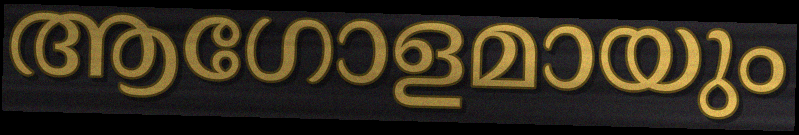
ആഗോളമായും